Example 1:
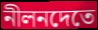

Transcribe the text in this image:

নীলনদেতে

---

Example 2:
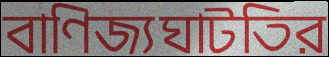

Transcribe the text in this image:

বাণিজ্যঘাটতির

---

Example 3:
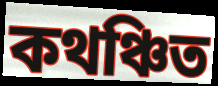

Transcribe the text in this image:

কথঞ্চিত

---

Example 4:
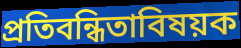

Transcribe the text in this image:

প্রতিবন্ধিতাবিষয়ক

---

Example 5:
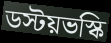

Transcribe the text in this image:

ডস্টয়ভস্কি